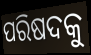
ପରିଷଦକୁ